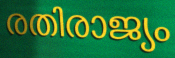
രതിരാജ്യം